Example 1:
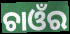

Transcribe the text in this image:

ଚାଓଁର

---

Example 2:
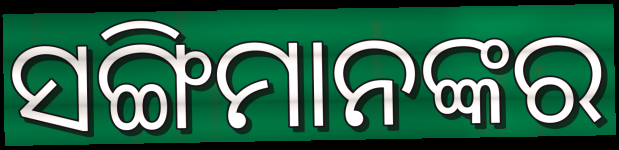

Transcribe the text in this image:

ସଙ୍ଗିମାନଙ୍କର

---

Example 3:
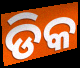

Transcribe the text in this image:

ଡିକ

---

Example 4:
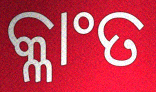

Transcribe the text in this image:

କ୍ଳାଂତ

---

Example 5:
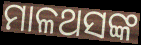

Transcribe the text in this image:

ମାଳଥସଙ୍କ